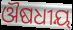
ଔଷଧୀୟ